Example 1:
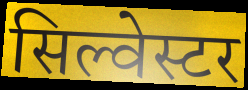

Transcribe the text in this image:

सिल्वेस्टर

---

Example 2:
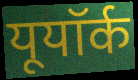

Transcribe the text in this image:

यूयॉर्क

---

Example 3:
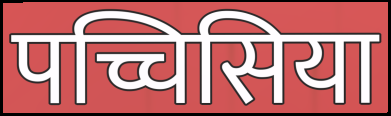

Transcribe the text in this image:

पच्चिसिया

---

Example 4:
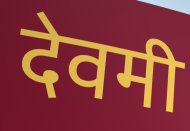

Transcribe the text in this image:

देवमी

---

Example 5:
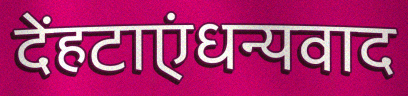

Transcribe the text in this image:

देंहटाएंधन्यवाद